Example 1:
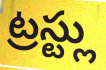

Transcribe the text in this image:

ట్రస్ట్లు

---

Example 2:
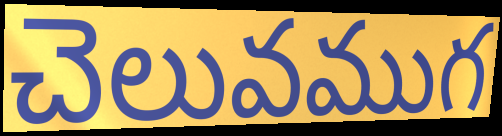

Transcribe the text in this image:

చెలువముగ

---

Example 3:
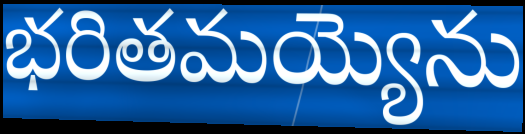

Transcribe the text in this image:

భరితమయ్యెను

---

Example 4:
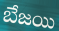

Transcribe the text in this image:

బేజయి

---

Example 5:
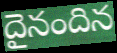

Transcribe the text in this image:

దైనందిన